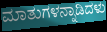
ಮಾತುಗಳನ್ನಾಡಿದಳು